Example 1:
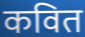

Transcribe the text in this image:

कवित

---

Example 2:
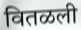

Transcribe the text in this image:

वितळली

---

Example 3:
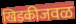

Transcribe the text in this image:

खिडकीजवळ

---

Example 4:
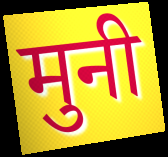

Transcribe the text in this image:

मुनी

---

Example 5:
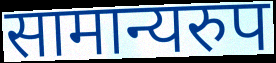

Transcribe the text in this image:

सामान्यरुप